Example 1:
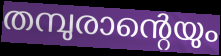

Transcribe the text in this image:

തമ്പുരാന്റെയും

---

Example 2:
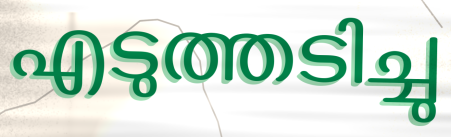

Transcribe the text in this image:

എടുത്തടിച്ചു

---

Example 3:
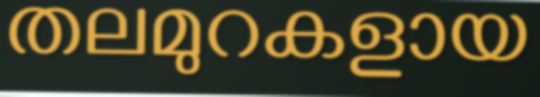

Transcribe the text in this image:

തലമുറകളായ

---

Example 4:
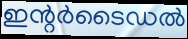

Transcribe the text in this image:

ഇന്റർടൈഡൽ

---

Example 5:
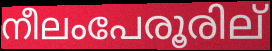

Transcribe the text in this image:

നീലംപേരൂരില്